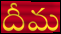
దీమ